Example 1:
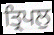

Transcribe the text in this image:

ਤ੍ਰਿਪਲੁ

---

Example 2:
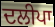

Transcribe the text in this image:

ਦਲੀਪਾ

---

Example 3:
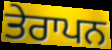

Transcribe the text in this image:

ਤੇਰਾਪਨ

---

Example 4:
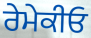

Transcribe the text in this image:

ਰੇਮੇਕੀਓ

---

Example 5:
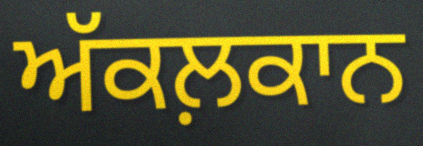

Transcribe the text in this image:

ਅੱਕਲ਼ਕਾਨ